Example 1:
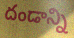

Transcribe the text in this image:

దండాన్ని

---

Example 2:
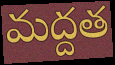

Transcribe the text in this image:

మద్దత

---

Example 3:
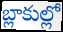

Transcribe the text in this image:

బ్లాకుల్లో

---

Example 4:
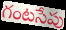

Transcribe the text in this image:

గంటసేపు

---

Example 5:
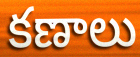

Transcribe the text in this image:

కణాలు